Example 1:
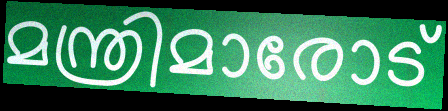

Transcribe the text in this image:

മന്ത്രിമാരോട്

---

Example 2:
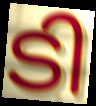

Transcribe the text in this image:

ടി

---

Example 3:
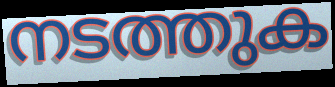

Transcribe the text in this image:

നടത്തുക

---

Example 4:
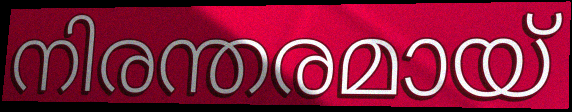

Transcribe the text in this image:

നിരന്തരമായ്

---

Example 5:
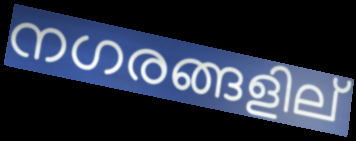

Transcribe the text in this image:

നഗരങ്ങളില്